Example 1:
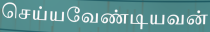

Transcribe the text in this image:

செய்யவேண்டியவன்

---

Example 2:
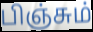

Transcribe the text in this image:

பிஞ்சும்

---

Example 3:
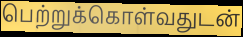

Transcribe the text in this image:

பெற்றுக்கொள்வதுடன்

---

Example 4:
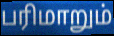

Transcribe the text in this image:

பரிமாறும்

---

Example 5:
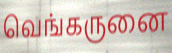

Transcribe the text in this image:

வெங்கருனை